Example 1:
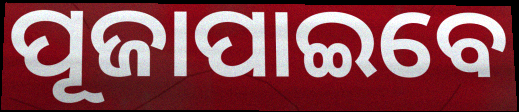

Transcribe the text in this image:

ପୂଜାପାଇବେ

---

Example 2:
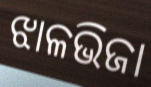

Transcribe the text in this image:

ଝାଳଭିଜା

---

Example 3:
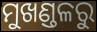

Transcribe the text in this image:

ମୁଖଣ୍ଡଳରୁ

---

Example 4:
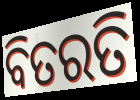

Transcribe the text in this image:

ବିତରତି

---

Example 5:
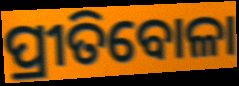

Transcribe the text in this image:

ପ୍ରୀତିବୋଳା